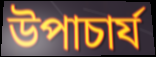
উপাচার্য